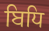
ਬਿਧਿ